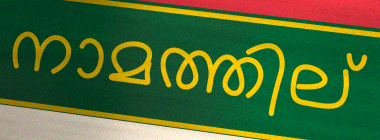
നാമത്തില്